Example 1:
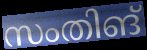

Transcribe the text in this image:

സംതിങ്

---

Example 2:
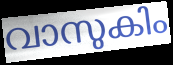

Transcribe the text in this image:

വാസുകിം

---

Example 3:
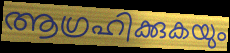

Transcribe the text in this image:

ആഗ്രഹിക്കുകയും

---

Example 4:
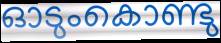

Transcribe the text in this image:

ഓടുംകൊണ്ടു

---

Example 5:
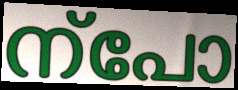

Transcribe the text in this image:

ന്പോ